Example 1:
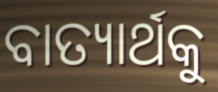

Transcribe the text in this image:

ବାତ୍ୟାର୍ଥକୁ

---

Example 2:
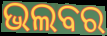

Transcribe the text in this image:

ଭଲବର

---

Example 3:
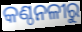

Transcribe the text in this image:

କଣ୍ଠନଳୀରୁ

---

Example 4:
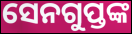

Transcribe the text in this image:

ସେନଗୁପ୍ତଙ୍କ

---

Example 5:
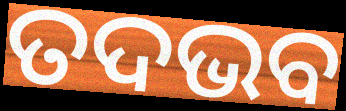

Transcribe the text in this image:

ତଦଭବ